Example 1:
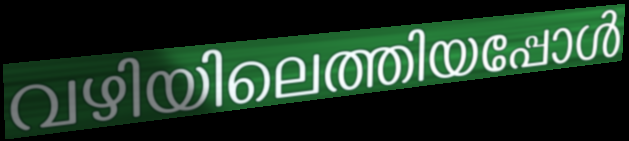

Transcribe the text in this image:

വഴിയിലെത്തിയപ്പോൾ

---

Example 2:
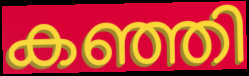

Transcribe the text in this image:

കഞ്ഞി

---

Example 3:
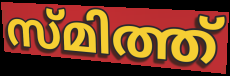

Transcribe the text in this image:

സ്മിത്ത്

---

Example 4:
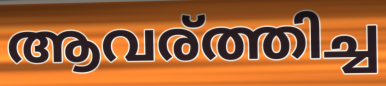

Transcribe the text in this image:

ആവര്ത്തിച്ച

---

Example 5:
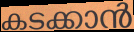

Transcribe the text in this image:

കടക്കാൻ